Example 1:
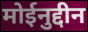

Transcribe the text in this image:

मोईनुद्दीन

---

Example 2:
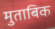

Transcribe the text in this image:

मुताबिक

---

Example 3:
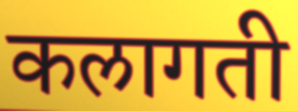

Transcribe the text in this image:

कलागती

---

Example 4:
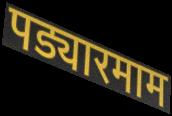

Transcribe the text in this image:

पड्यारमाम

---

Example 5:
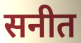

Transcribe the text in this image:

सनीत